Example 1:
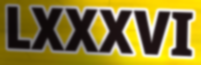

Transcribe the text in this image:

LXXXVI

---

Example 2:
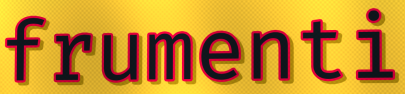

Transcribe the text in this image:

frumenti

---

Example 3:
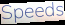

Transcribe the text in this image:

Speeds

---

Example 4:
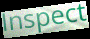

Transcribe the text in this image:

Inspect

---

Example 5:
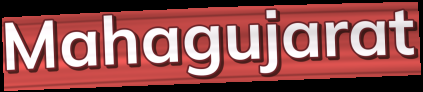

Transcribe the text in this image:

Mahagujarat